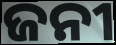
ଜନୀ